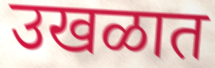
उखळात